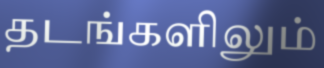
தடங்களிலும்